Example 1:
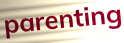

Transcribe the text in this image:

parenting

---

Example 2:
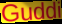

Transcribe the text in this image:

Guddi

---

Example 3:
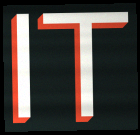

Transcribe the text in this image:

IT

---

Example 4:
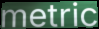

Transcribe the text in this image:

metric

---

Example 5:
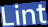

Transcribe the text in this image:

Lint